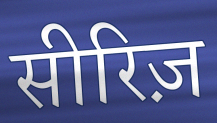
सीरिज़